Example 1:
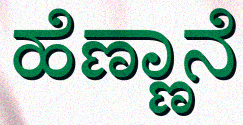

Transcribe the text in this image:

ಹೆಣ್ಣಾನೆ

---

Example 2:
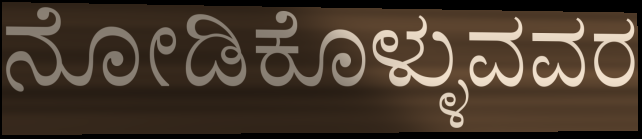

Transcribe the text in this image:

ನೋಡಿಕೊಳ್ಳುವವರ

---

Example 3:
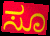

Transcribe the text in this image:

ಸೂ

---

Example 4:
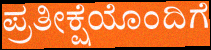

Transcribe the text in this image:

ಪ್ರತೀಕ್ಷೆಯೊಂದಿಗೆ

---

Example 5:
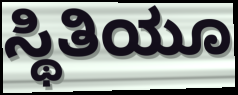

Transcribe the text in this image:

ಸ್ಥಿತಿಯೂ